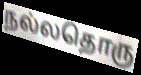
நல்லதொரு